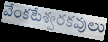
వేంకటేశ్వరకవులు